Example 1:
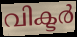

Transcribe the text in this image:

വിക്ടർ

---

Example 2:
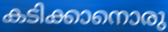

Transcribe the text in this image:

കടിക്കാനൊരു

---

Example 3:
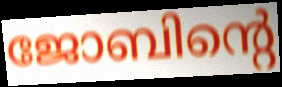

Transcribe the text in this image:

ജോബിന്റെ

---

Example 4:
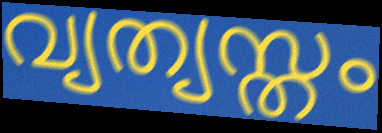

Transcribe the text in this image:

വ്യത്യസ്തം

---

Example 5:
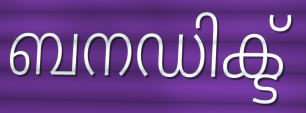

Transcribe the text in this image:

ബനഡിക്ട്